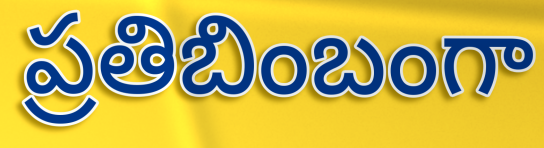
ప్రతిబింబంగా